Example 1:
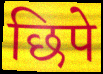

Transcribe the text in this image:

छिपे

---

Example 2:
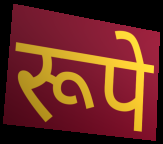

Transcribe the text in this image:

रूपे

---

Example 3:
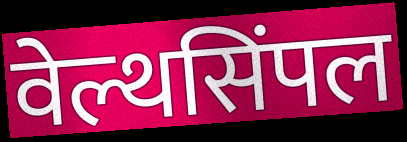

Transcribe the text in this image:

वेल्थसिंपल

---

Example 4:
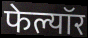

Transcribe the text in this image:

फेल्यॉर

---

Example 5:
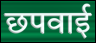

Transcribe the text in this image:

छपवाई